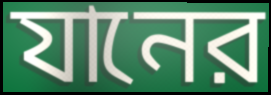
যানের